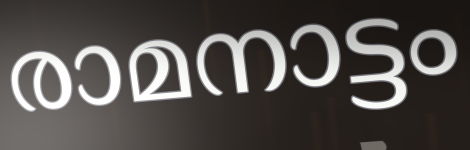
രാമനാട്ടം